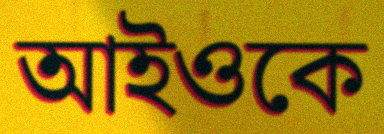
আইওকে